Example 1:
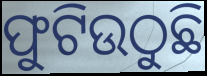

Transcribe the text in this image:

ଫୁଟିଉଠୁଛି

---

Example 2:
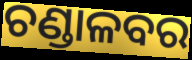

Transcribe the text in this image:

ଚଣ୍ଡାଳବର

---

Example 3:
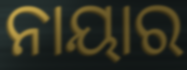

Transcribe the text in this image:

ନାୟାର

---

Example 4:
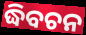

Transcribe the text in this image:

ଦ୍ଧିବଚନ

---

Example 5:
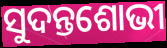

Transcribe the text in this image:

ସୁଦନ୍ତଶୋଭୀ